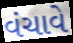
વંચાવે